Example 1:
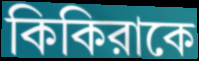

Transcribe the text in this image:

কিকিরাকে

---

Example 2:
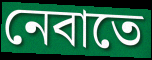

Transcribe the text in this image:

নেবাতে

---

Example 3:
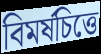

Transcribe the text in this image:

বিমর্ষচিত্তে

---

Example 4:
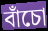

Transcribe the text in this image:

বাঁচো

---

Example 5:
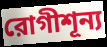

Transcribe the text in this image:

রোগীশূন্য